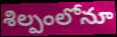
శిల్పంలోనూ